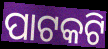
ପାଟକଟି